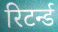
रिटर्न्ड